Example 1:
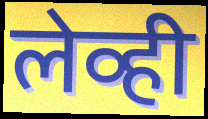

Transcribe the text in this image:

लेव्ही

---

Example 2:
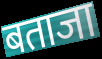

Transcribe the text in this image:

बताजा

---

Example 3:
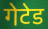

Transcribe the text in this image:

गेटेड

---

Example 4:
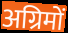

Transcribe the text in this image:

अग्रिमों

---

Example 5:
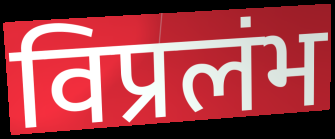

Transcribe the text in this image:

विप्रलंभ